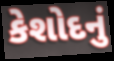
કેશોદનું